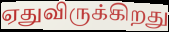
ஏதுவிருக்கிறது